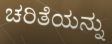
ಚರಿತೆಯನ್ನು